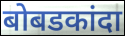
बोबडकांदा